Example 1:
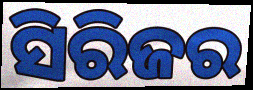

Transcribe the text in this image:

ସିରିଜର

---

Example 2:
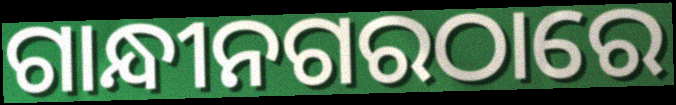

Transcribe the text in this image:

ଗାନ୍ଧୀନଗରଠାରେ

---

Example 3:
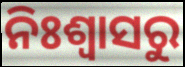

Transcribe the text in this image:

ନିଃଶ୍ଵାସରୁ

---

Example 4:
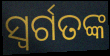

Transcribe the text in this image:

ସ୍ୱର୍ଗତଙ୍କ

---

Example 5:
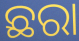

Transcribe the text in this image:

ଛରା